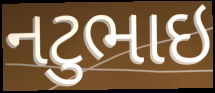
નટુભાઇ